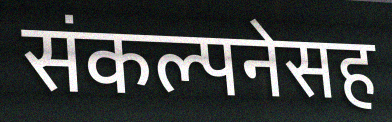
संकल्पनेसह